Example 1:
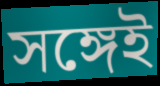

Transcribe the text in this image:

সঙ্গেই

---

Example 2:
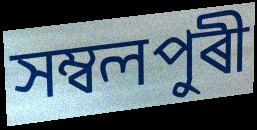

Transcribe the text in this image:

সম্বলপুৰী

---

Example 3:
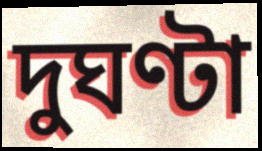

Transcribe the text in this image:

দুঘণ্টা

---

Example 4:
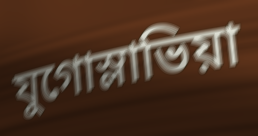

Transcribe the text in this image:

যুগোস্লাভিয়া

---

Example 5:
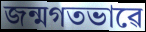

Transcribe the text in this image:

জন্মগতভাৱে